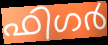
ഫിഗർ